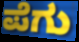
ಪೆಗು